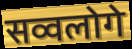
सव्वलोगे